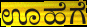
ಊಹೆಗೆ